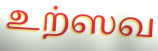
உற்ஸவ